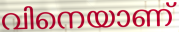
വിനെയാണ്